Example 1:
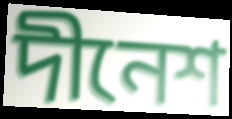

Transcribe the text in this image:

দীনেশ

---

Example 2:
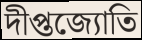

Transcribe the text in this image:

দীপ্তজ্যোতি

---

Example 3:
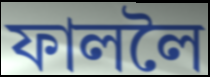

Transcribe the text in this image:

ফাললৈ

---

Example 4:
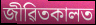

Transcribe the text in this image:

জীৱিতকালত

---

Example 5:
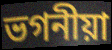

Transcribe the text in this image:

ভগনীয়া